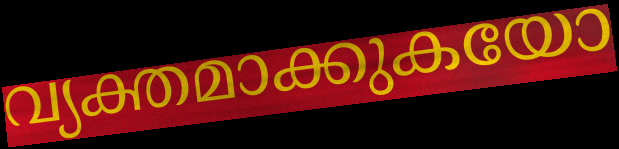
വ്യക്തമാക്കുകയോ